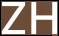
ZH